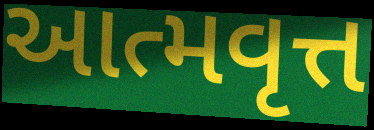
આત્મવૃત્ત